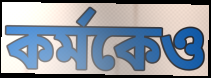
কর্মকেও